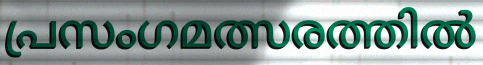
പ്രസംഗമത്സരത്തിൽ